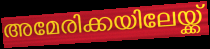
അമേരിക്കയിലേയ്ക്ക്